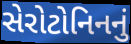
સેરોટોનિનનું